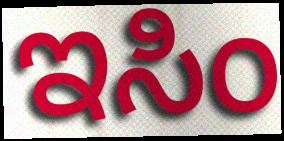
ಇಸಿಂ